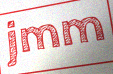
jmm